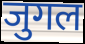
जुगल